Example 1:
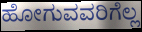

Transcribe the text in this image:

ಹೋಗುವವರಿಗೆಲ್ಲ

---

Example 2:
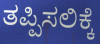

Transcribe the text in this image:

ತಪ್ಪಿಸಲಿಕ್ಕೆ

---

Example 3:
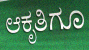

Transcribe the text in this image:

ಆಕೃತಿಗೂ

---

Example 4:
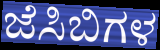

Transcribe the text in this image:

ಜೆಸಿಬಿಗಳ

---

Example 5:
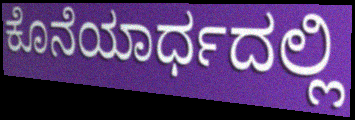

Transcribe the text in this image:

ಕೊನೆಯಾರ್ಧದಲ್ಲಿ